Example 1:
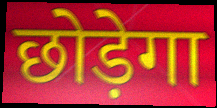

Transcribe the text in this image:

छोड़ेगा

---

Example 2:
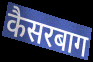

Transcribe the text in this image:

कैसरबाग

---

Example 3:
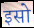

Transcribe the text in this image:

इसो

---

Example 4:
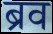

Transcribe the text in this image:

ब्रव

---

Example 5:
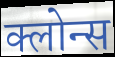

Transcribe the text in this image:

क्लोन्स